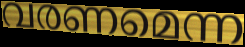
വരണമെന്ന